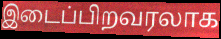
இடைப்பிறவரலாக